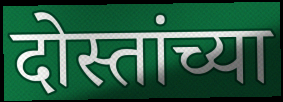
दोस्तांच्या